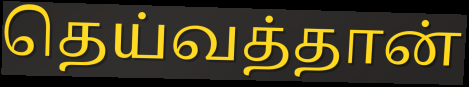
தெய்வத்தான்